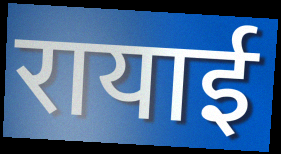
रायाई